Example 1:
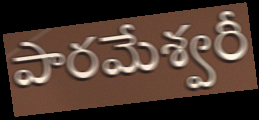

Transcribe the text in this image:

పారమేశ్వరీ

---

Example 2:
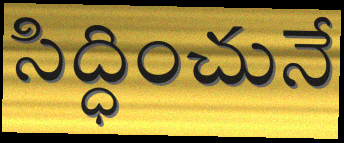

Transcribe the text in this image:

సిద్ధించునే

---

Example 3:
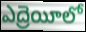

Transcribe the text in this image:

ఎద్రెయీలో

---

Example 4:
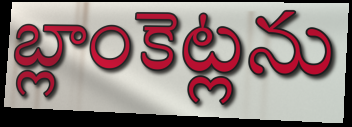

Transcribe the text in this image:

బ్లాంకెట్లను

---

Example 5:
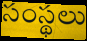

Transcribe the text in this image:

సంస్థలు